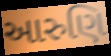
આરુણિ